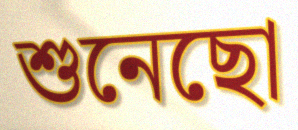
শুনেছো